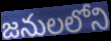
జనులలోని